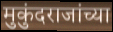
मुकुंदराजांच्या